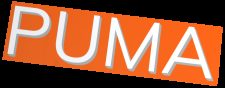
PUMA